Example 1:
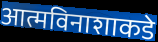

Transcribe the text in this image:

आत्मविनाशाकडे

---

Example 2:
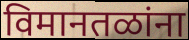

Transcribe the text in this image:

विमानतळांना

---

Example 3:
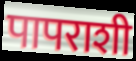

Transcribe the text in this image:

पापराशी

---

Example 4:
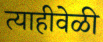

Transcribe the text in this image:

त्याहीवेळी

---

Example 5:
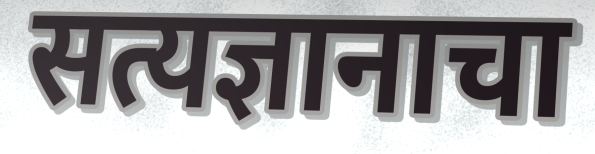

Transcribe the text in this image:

सत्यज्ञानाचा